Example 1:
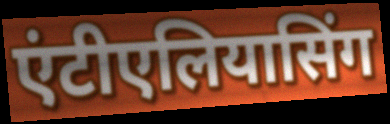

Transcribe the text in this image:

एंटीएलियासिंग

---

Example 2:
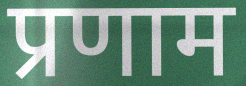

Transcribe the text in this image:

प्रणाम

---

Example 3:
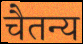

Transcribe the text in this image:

चैतन्य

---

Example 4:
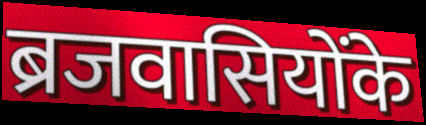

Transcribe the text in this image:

ब्रजवासियोंके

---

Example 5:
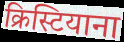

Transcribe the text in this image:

क्रिस्टियाना